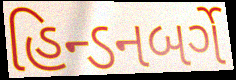
હિન્ડનબર્ગે